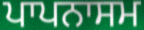
ਪਾਪਨਾਸਮ